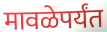
मावळेपर्यंत